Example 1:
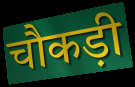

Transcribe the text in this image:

चौकड़ी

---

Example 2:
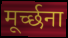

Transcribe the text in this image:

मूर्च्छना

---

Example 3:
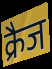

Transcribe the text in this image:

क्रैज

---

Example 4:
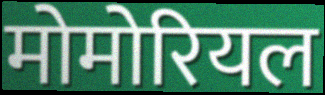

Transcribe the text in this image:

मोमोरियल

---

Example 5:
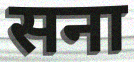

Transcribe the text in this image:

सना